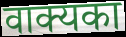
वाक्यका